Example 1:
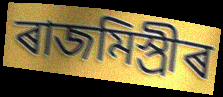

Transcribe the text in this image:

ৰাজমিস্ত্ৰীৰ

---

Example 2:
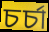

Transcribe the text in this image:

চৰ্চা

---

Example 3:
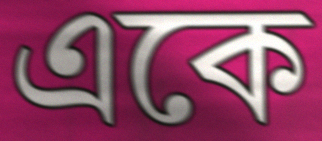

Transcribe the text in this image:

একে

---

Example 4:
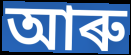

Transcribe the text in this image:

আৰু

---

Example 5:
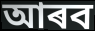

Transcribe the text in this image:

আৰব